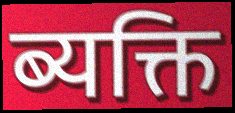
ब्यक्ति